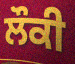
ਲੌਕੀ